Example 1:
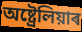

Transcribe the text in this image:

অষ্ট্ৰেলিয়াৰ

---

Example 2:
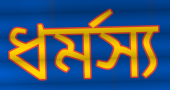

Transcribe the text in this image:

ধৰ্মস্য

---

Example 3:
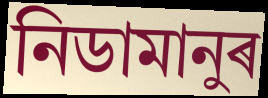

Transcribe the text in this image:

নিডামানুৰ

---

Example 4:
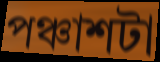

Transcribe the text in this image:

পঞ্চাশটা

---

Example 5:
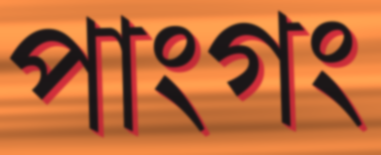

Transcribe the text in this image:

পাংগং